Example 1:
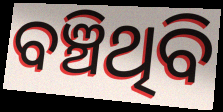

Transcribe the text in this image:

ବଞ୍ଚିଥିବି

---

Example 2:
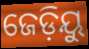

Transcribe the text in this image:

ଜେଡ଼ିୟୁ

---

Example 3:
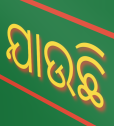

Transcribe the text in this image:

ଯାଉଛି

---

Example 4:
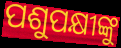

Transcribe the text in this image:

ପଶୁପକ୍ଷୀଙ୍କୁ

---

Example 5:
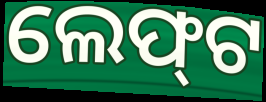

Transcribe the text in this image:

ଲେଫ୍‌ଟ